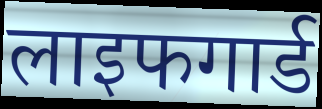
लाइफगार्ड